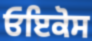
ਓਇਕੋਸ